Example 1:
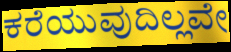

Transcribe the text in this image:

ಕರೆಯುವುದಿಲ್ಲವೇ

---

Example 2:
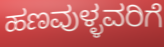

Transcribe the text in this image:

ಹಣವುಳ್ಳವರಿಗೆ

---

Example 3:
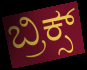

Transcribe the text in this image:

ಬ್ರಿಕ್ಸ್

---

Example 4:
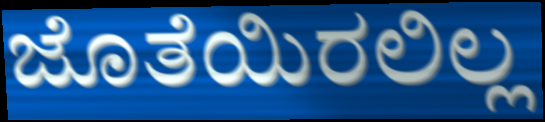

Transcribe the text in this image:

ಜೊತೆಯಿರಲಿಲ್ಲ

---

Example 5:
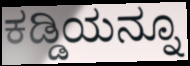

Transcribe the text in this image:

ಕಡ್ಡಿಯನ್ನೂ